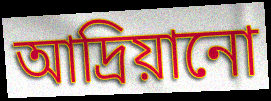
আদ্রিয়ানো